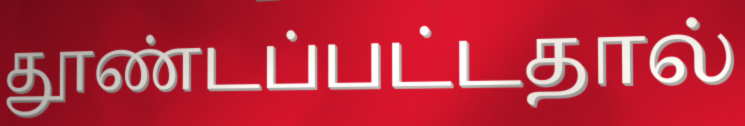
தூண்டப்பட்டதால்